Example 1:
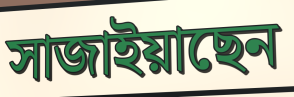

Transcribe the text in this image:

সাজাইয়াছেন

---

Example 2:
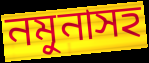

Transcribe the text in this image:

নমুনাসহ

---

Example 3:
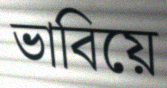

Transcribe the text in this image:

ভাবিয়ে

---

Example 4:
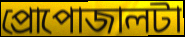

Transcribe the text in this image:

প্রোপোজালটা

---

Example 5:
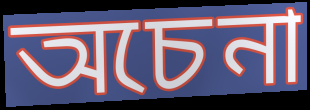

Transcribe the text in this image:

অচেনা